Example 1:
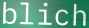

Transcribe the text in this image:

blich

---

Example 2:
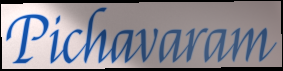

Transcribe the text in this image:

Pichavaram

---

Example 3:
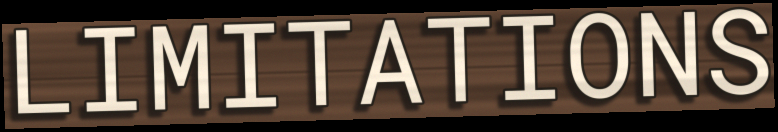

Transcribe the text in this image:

LIMITATIONS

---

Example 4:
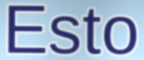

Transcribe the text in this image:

Esto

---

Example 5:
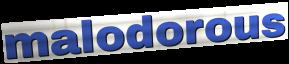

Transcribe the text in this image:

malodorous